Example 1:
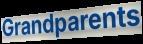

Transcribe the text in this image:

Grandparents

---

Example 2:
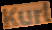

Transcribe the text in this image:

Kurl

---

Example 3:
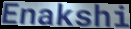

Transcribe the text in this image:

Enakshi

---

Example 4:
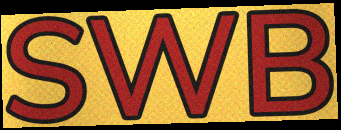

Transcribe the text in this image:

SWB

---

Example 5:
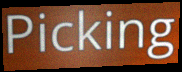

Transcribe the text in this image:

Picking